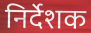
निर्देशक